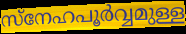
സ്നേഹപൂർവ്വമുള്ള